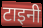
टाइनी